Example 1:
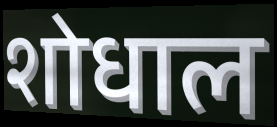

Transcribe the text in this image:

शोधाल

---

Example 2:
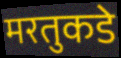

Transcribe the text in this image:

मरतुकडे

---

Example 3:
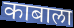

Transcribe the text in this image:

काबाला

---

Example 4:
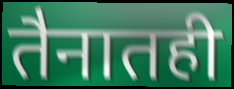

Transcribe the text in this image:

तैनातही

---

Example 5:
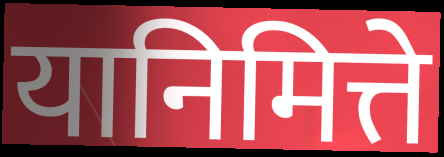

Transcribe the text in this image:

यानिमित्ते